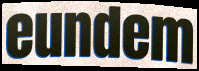
eundem